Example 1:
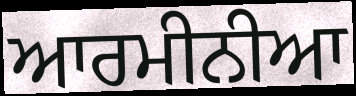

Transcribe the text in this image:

ਆਰਮੀਨੀਆ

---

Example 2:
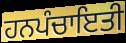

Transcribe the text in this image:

ਹਨਪੰਚਾਇਤੀ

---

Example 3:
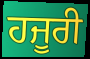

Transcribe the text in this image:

ਹਜੂਰੀ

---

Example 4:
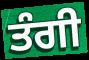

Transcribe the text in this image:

ਤੰਗੀ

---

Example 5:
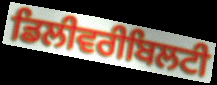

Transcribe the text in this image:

ਡਿਲੀਵਰੀਬਿਲਟੀ